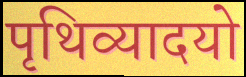
पृथिव्यादयो